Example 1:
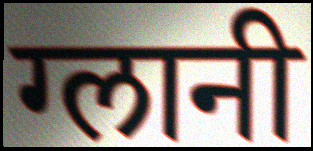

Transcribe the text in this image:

ग्लानी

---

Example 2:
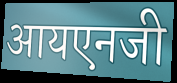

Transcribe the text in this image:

आयएनजी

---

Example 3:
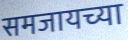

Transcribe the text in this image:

समजायच्या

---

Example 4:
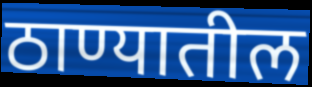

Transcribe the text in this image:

ठाण्यातील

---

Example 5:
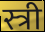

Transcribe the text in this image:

स्त्री